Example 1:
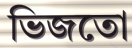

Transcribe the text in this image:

ভিজতো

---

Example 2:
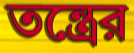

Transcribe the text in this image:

তন্ত্রের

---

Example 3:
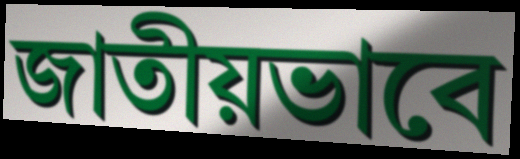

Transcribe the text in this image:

জাতীয়ভাবে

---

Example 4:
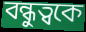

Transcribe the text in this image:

বন্ধুত্বকে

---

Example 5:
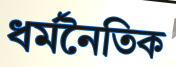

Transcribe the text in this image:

ধর্মনৈতিক